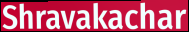
Shravakachar